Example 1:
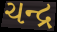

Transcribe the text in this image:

ચન્દ્ર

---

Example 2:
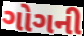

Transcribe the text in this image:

ગોગની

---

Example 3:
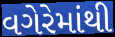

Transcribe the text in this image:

વગેરેમાંથી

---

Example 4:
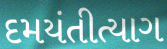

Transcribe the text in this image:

દમયંતીત્યાગ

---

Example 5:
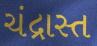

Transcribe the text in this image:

ચંદ્રાસ્ત